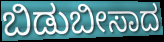
ಬಿಡುಬೀಸಾದ